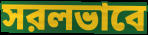
সরলভাবে